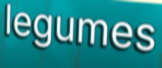
legumes